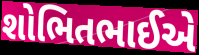
શોભિતભાઈએ